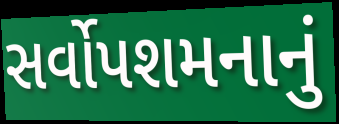
સર્વોપશમનાનું